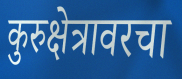
कुरुक्षेत्रावरचा